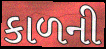
કાળની